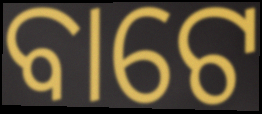
ବାଟେ